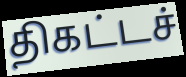
திகட்டச்